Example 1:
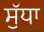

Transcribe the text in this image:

ਸੁੱਧਾ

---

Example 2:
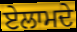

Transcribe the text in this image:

ਏਲਾਮਦੇ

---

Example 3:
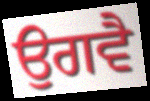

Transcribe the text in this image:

ਉਗਵੈ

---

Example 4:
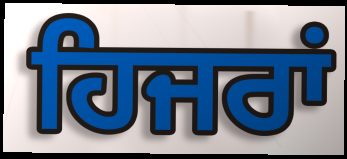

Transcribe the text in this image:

ਹਿਜਰਾਂ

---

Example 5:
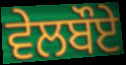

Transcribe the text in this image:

ਵੇਲਬੌਏ